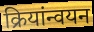
क्रियांन्वयन